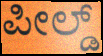
ಪೀಲ್ಡ್